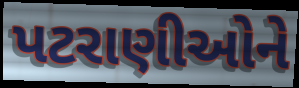
પટરાણીઓને